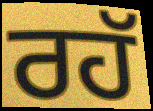
ਰਹੱ